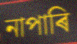
নাপাৰি